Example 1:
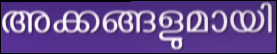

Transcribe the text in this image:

അക്കങ്ങളുമായി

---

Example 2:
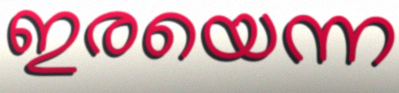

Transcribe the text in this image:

ഇരയെന്ന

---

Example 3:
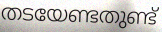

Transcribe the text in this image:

തടയേണ്ടതുണ്ട്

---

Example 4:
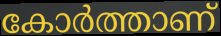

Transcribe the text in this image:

കോർത്താണ്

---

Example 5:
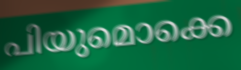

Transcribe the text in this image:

പിയുമൊക്കെ